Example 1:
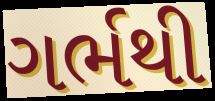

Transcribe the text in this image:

ગર્ભથી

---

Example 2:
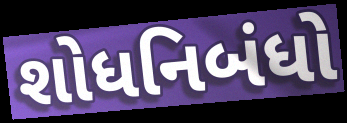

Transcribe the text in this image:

શોધનિબંધો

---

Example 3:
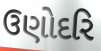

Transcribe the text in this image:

ઉણોદરિ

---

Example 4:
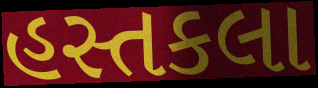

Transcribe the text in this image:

હસ્તકલા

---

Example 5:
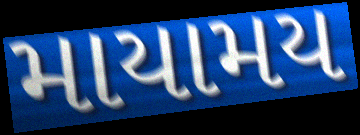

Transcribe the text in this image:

માયામય